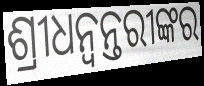
ଶ୍ରୀଧନ୍ୱନ୍ତରୀଙ୍କର